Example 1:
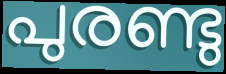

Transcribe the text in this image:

പുരണ്ടു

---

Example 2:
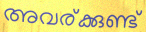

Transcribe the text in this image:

അവര്ക്കുണ്ട്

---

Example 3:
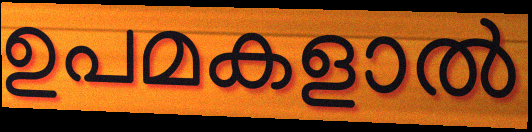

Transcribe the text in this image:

ഉപമകളാൽ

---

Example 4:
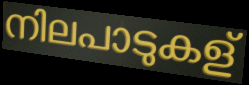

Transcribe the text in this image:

നിലപാടുകള്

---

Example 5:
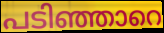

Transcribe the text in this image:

പടിഞ്ഞാറെ